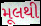
મૂલથી